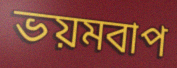
ভয়মবাপ